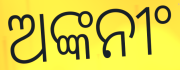
ଅଙ୍କନୀଂ